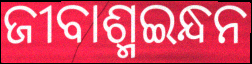
ଜୀବାଶ୍ମଇନ୍ଧନ